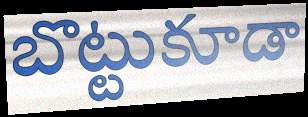
బొట్టుకూడా